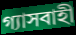
গ্যাসবাহী